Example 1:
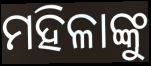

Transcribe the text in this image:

ମହିଳାଙ୍କୁ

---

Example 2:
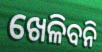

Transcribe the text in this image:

ଖେଳିବନି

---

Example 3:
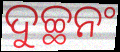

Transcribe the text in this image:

ଦୁଚ୍ଛନଂ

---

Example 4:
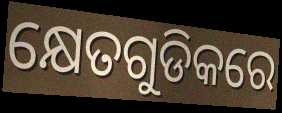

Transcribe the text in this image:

କ୍ଷେତଗୁଡିକରେ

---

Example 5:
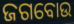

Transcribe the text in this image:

ଜଗବୋଉ